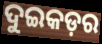
ଦୁଇକଡ଼ର